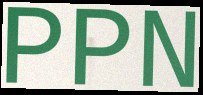
PPN